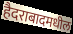
हैदराबादमधील